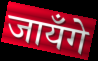
जायँगे